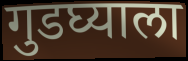
गुडघ्याला